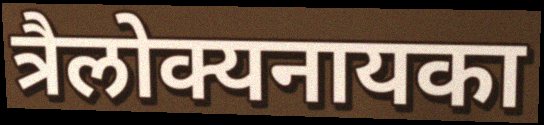
त्रैलोक्यनायका